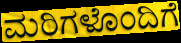
ಮರಿಗಳೊಂದಿಗೆ